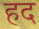
हद